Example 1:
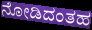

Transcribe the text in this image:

ನೋಡಿದಂತಹ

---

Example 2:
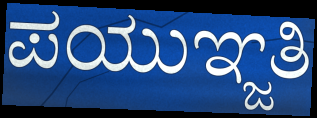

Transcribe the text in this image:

ಪಯುಞ್ಜತಿ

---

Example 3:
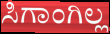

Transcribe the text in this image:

ಸಿಗಾಂಗಿಲ್ಲ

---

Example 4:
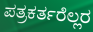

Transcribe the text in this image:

ಪತ್ರಕರ್ತರೆಲ್ಲರ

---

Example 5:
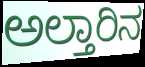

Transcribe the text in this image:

ಅಲ್ತಾರಿನ